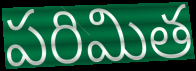
పరిమిత